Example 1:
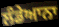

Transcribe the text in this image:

ਲੰਡੇਆਨਾ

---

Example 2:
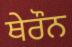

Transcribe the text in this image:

ਥੇਰੌਨ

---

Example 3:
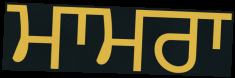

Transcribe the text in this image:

ਮਾਮਰਾ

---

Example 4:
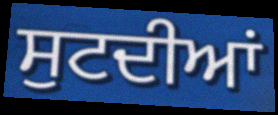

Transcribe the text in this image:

ਸੁਟਦੀਆਂ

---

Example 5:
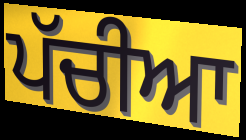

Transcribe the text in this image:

ਪੱਚੀਆ